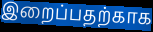
இறைப்பதற்காக